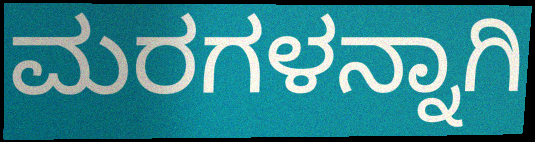
ಮರಗಳನ್ನಾಗಿ